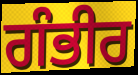
ਗੰਭੀਰ